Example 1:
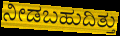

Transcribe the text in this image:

ನೀಡಬಹುದಿತ್ತು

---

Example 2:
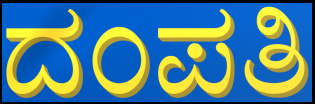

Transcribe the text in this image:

ದಂಪತಿ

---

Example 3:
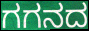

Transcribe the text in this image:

ಗಗನದ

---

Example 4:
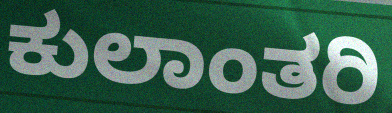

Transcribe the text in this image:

ಕುಲಾಂತರಿ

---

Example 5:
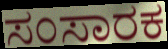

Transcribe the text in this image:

ಸಂಸಾರಕ